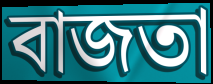
বাজতা